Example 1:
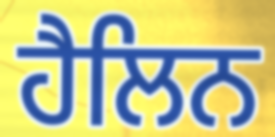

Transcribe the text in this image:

ਹੈਲਿਨ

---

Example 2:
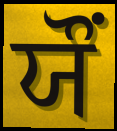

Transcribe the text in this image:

ਯੌਂ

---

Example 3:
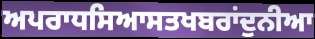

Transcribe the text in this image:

ਅਪਰਾਧਸਿਆਸਤਖਬਰਾਂਦੁਨੀਆ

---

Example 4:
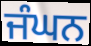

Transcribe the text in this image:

ਜੰਘਨ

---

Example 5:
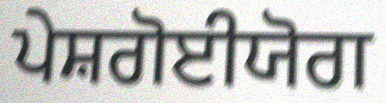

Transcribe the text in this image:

ਪੇਸ਼ਗੋਈਯੋਗ